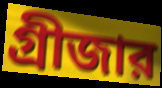
গ্রীজার